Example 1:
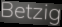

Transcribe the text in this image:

Betzig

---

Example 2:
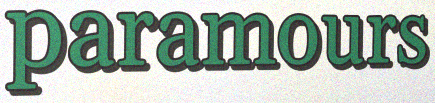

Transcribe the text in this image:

paramours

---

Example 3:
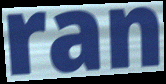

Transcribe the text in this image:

ran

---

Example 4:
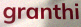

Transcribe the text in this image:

granthi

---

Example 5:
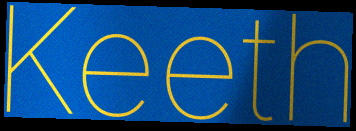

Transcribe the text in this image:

Keeth